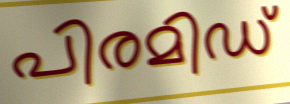
പിരമിഡ്